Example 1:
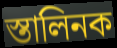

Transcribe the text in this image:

স্তালিনক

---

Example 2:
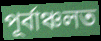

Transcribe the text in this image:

পূৰ্বাঞ্চলত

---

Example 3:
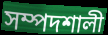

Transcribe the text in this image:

সম্পদশালী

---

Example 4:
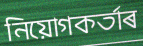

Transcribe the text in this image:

নিয়োগকৰ্তাৰ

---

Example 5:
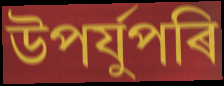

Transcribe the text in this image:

উপৰ্যুপৰি